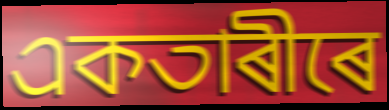
একতাৰীৰে